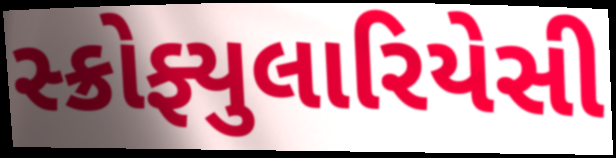
સ્ક્રોફ્યુલારિયેસી